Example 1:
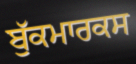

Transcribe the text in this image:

ਬੁੱਕਮਾਰਕਸ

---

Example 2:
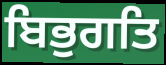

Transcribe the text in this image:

ਬਿਭੁਗਤਿ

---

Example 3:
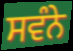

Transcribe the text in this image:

ਸਵੰਨੇ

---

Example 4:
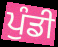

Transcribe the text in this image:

ਪੁੰਡੀ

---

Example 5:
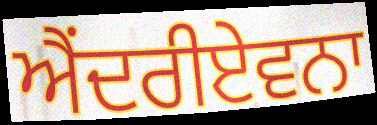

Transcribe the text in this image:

ਐਂਦਰੀਏਵਨਾ